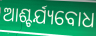
ଆଶ୍ଚର୍ଯ୍ୟବୋଧ